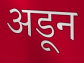
अडून